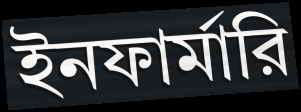
ইনফার্মারি